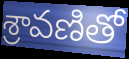
శ్రావణితో